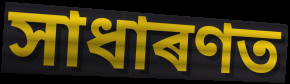
সাধাৰণত